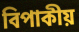
বিপাকীয়